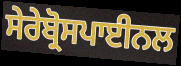
ਸੇਰੇਬ੍ਰੋਸਪਾਈਨਲ